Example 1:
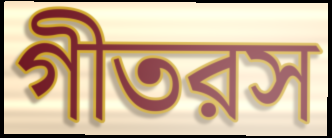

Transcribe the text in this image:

গীতরস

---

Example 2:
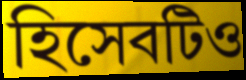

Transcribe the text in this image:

হিসেবটিও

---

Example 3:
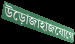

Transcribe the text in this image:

উড়োজাহাজযোগে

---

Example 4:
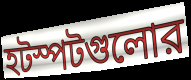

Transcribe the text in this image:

হটস্পটগুলোর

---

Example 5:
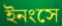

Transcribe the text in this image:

ইনংসে